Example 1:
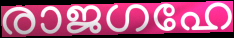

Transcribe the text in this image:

രാജഗഹേ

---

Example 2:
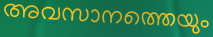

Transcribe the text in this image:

അവസാനത്തെയും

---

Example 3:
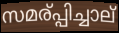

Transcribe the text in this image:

സമര്പ്പിച്ചാല്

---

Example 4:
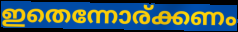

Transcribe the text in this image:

ഇതെന്നോര്ക്കണം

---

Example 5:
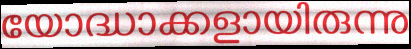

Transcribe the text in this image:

യോദ്ധാക്കളായിരുന്നു